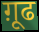
ग़ूढ